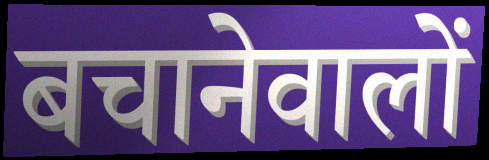
बचानेवालों